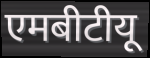
एमबीटीयू